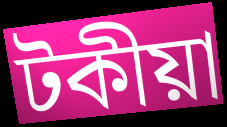
টকীয়া